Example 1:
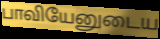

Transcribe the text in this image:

பாவியேனுடைய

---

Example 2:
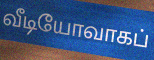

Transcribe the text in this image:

வீடியோவாகப்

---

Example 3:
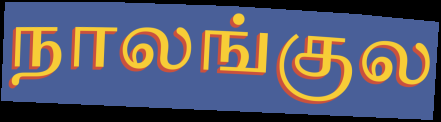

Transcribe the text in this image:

நாலங்குல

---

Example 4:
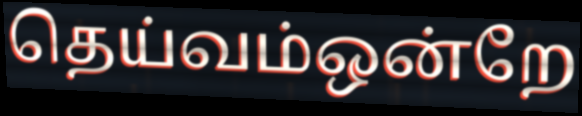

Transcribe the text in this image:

தெய்வம்ஒன்றே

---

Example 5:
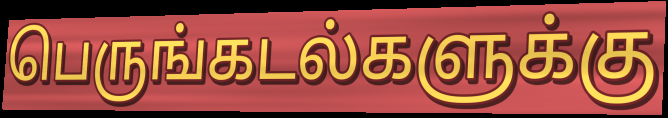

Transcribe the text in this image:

பெருங்கடல்களுக்கு